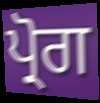
ਪ੍ਰੋਗ